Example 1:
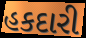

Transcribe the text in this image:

હકદારી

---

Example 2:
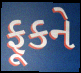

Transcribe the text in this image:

ફૂકને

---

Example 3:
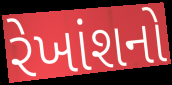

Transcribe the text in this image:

રેખાંશનો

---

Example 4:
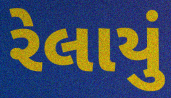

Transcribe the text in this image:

રેલાયું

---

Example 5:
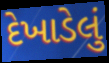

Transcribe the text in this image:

દેખાડેલું